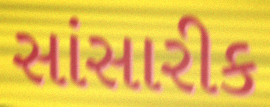
સાંસારીક